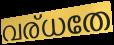
വര്ധതേ